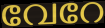
വേറേ